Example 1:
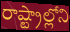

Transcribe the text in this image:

రాష్ట్రాల్లోని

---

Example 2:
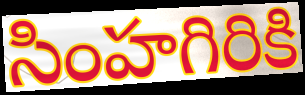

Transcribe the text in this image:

సింహగిరికి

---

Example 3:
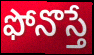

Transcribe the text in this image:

ఫోనొస్తే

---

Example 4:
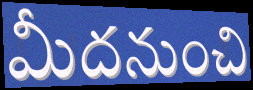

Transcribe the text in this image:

మీదనుంచి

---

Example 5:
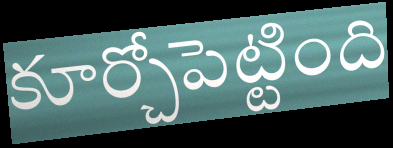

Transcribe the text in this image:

కూర్చోపెట్టింది